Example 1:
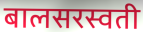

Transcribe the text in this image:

बालसरस्वती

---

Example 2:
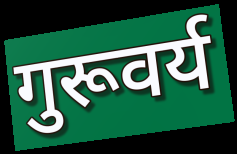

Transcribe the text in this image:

गुरूवर्य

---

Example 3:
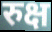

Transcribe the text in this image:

रुक्ष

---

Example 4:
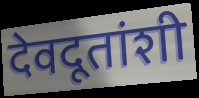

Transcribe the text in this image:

देवदूतांशी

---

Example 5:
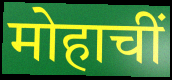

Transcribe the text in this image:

मोहाचीं